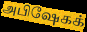
அபிஷேகக்